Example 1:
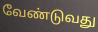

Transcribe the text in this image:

வேண்டுவது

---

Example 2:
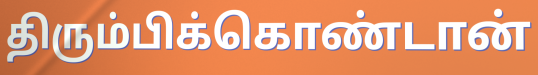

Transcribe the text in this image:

திரும்பிக்கொண்டான்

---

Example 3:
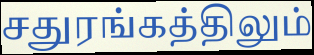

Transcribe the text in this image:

சதுரங்கத்திலும்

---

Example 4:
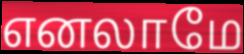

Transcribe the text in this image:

எனலாமே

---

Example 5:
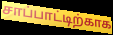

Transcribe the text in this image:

சாப்பாட்டிற்காக